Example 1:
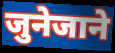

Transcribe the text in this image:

जुनेजाने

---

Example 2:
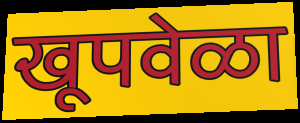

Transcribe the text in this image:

खूपवेळा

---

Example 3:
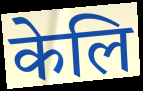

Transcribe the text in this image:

केलि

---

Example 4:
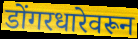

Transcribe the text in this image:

डोंगरधारेवरून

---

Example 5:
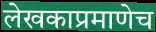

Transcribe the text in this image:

लेखकाप्रमाणेच